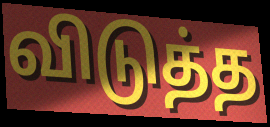
விடுத்த